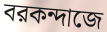
বরকন্দাজে